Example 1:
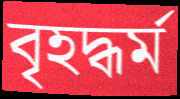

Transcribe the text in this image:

বৃহদ্ধৰ্ম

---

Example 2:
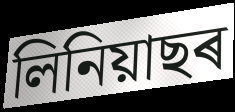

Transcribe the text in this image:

লিনিয়াছৰ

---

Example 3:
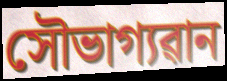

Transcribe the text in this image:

সৌভাগ্যৱান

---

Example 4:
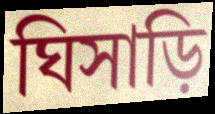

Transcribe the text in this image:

ঘিসাড়ি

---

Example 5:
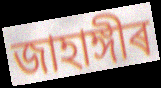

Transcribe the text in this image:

জাহাঙ্গীৰ